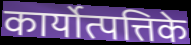
कार्योत्पत्तिके